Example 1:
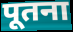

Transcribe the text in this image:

पूतना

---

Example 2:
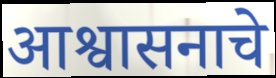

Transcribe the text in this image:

आश्वासनाचे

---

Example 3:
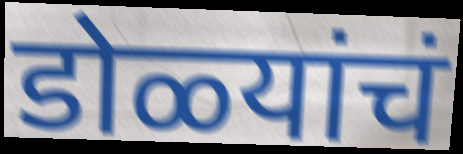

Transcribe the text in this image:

डोळ्यांचं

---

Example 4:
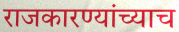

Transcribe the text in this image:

राजकारण्यांच्याच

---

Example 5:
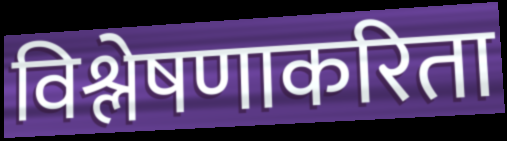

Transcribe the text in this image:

विश्लेषणाकरिता